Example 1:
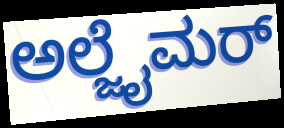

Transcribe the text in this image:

ಅಲ್ಜೈಮರ್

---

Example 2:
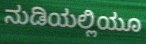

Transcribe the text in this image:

ನುಡಿಯಲ್ಲಿಯೂ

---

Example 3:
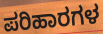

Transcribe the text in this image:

ಪರಿಹಾರಗಳ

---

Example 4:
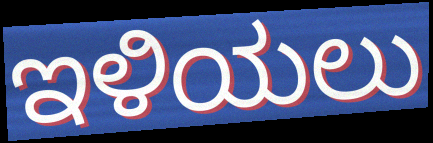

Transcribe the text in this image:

ಇಳಿಯಲು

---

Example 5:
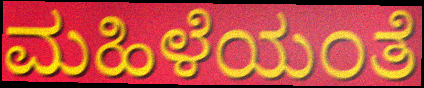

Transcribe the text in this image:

ಮಹಿಳೆಯಂತೆ